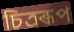
চিত্ৰৰূপ